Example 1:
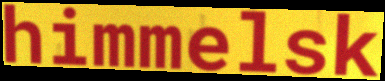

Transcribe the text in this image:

himmelsk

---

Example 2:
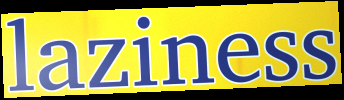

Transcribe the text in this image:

laziness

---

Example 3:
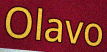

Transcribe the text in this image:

Olavo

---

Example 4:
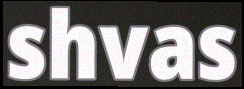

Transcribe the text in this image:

shvas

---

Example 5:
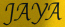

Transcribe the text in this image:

JAYA